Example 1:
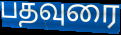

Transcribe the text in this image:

பதவுரை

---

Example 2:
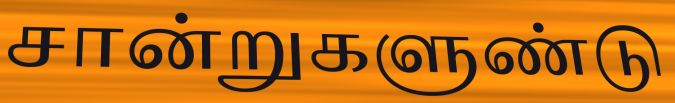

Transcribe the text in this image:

சான்றுகளுண்டு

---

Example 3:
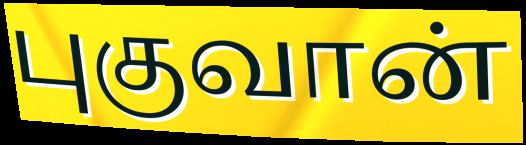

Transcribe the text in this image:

புகுவான்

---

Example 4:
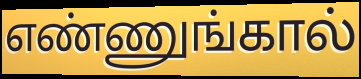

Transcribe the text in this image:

எண்ணுங்கால்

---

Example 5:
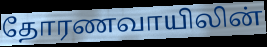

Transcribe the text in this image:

தோரணவாயிலின்